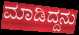
ಮಾಡಿದ್ದನು